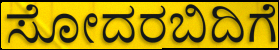
ಸೋದರಬಿದಿಗೆ